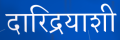
दारिद्रयाशी